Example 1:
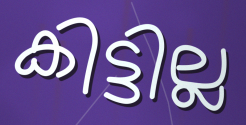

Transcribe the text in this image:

കിട്ടില്ല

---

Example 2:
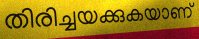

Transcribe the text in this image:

തിരിച്ചയക്കുകയാണ്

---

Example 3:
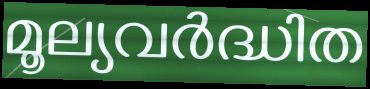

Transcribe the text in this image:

മൂല്യവർദ്ധിത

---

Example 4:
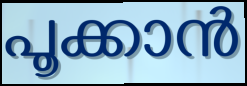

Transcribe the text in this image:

പൂക്കാൻ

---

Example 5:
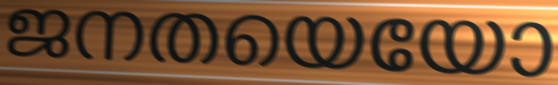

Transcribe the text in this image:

ജനതയെയോ